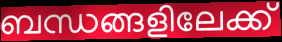
ബന്ധങ്ങളിലേക്ക്